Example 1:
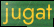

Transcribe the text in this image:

jugat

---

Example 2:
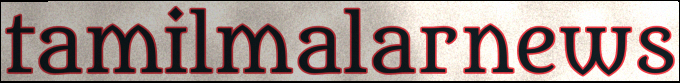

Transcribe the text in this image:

tamilmalarnews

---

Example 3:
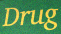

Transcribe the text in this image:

Drug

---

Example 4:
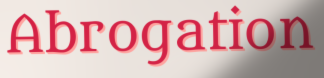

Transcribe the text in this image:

Abrogation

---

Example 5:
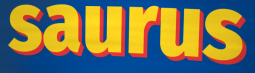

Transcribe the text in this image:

saurus